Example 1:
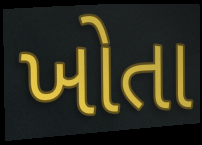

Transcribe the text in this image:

ખોતા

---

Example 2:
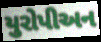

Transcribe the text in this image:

યુરોપીઅન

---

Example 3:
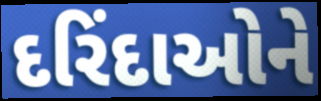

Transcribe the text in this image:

દરિંદાઓને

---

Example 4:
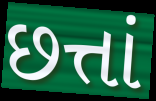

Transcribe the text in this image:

છત્તાં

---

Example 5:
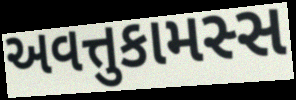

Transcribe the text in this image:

અવત્તુકામસ્સ